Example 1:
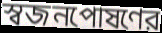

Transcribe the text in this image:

স্বজনপোষণের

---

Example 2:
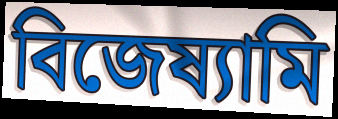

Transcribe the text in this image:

বিজেষ্যামি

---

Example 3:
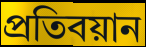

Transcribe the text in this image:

প্রতিবয়ান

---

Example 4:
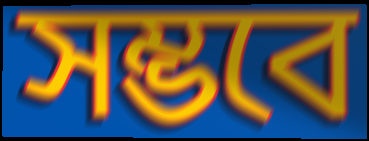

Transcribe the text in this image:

সম্ভবে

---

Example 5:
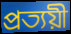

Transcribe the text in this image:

প্রত্যয়ী